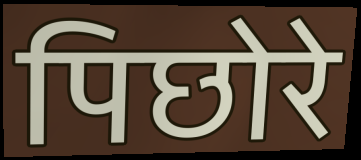
पिछोरे